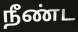
நீண்ட